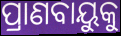
ପ୍ରାଣବାୟୁକୁ